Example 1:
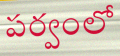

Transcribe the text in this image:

పర్వంలో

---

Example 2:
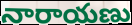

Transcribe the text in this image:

నారాయణు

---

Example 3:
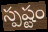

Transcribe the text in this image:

స్పష్టం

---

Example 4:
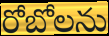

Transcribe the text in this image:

రోబోలను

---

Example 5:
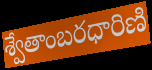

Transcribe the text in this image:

శ్వేతాంబరధారిణి